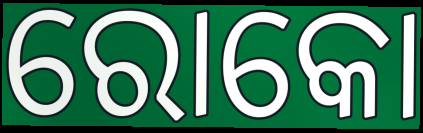
ରୋକୋ